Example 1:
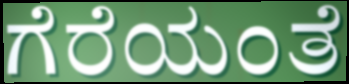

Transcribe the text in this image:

ಗೆರೆಯಂತೆ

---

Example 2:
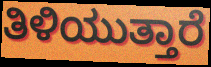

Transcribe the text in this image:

ತಿಳಿಯುತ್ತಾರೆ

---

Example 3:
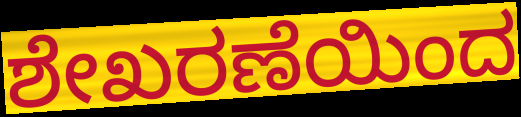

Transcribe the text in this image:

ಶೇಖರಣೆಯಿಂದ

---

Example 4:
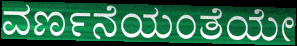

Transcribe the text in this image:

ವರ್ಣನೆಯಂತೆಯೇ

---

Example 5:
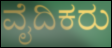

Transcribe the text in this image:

ವೈದಿಕರು